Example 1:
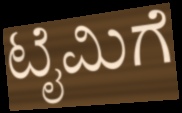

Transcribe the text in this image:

ಟೈಮಿಗೆ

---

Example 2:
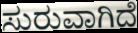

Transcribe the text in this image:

ಸುರುವಾಗಿದೆ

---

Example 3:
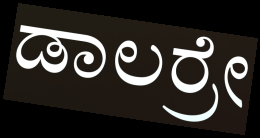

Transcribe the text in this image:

ಡಾಲರ್ರೇ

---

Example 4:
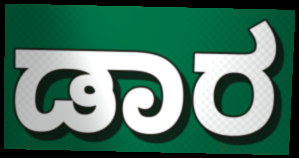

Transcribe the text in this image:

ಡಾರ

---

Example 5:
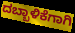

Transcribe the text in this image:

ದಬ್ಬಾಳಿಕೆಗಾಗಿ